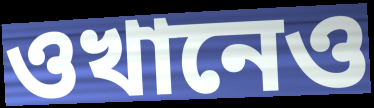
ওখানেও